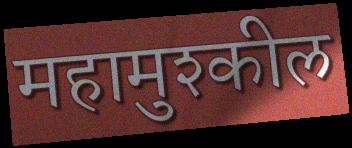
महामुश्कील